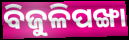
ବିଜୁଳିପଙ୍ଖା